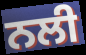
ਨਲੀ